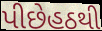
પીછેહઠથી